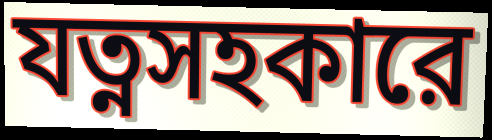
যত্নসহকারে